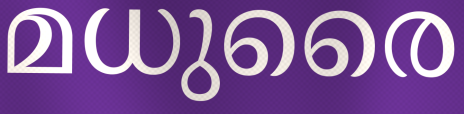
മധുരൈ